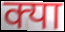
क्‍या